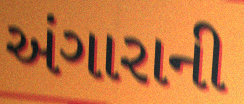
અંગારાની